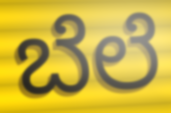
ಬೆಲೆ